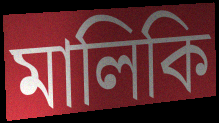
মালিকি